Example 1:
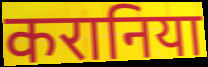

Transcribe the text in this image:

करानिया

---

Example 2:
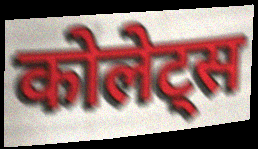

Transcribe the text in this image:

कोलेट्स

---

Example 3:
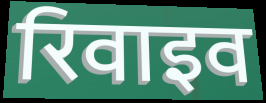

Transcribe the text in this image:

रिवाइव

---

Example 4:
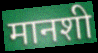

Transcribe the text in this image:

मानशी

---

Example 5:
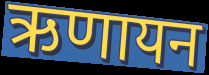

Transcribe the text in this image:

ऋणायन